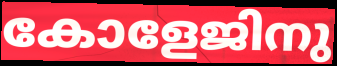
കോളേജിനു